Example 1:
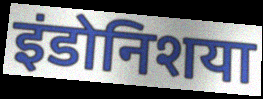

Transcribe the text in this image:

इंडोनिशया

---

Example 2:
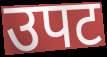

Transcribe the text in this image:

उपट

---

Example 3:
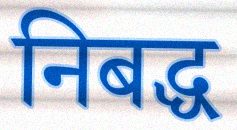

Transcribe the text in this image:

निबद्ध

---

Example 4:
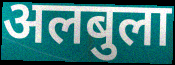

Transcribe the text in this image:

अलबुला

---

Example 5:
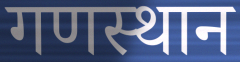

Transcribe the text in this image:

गणस्थान